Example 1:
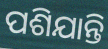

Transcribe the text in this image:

ପଶିଯାନ୍ତି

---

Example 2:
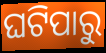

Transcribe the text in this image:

ଘଟିପାରୁ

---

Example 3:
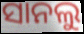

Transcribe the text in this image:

ସାନଲୁ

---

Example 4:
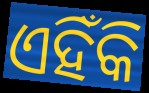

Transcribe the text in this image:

ଏହିଁକି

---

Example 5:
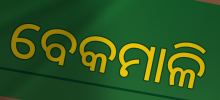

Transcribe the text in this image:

ବେକମାଳି